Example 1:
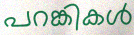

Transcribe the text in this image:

പറങ്കികൾ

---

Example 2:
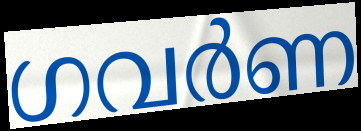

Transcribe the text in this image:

ഗവർണ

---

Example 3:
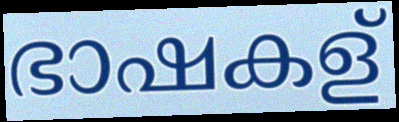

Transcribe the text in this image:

ഭാഷകള്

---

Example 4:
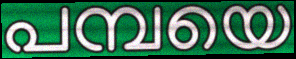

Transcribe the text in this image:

പമ്പയെ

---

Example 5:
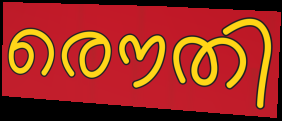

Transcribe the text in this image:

രൌതി